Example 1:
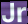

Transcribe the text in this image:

Jr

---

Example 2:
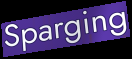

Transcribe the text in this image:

Sparging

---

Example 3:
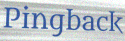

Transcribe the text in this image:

Pingback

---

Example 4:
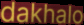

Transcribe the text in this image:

dakhalo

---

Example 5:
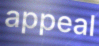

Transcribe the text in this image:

appeal